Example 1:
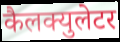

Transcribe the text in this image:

कैलक्युलेटर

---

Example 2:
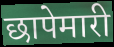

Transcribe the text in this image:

छापेमारी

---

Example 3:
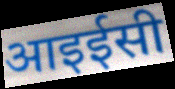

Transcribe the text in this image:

आइईसी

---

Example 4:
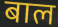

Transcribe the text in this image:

बाल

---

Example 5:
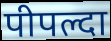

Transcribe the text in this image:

पीपल्दा